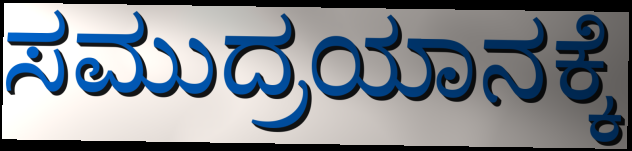
ಸಮುದ್ರಯಾನಕ್ಕೆ